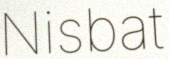
Nisbat